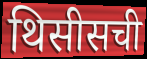
थिसीसची